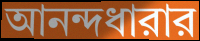
আনন্দধারার